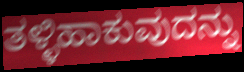
ತಳ್ಳಿಹಾಕುವುದನ್ನು